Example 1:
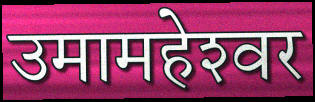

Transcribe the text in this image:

उमामहेश्वर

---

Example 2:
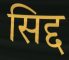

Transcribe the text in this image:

सिद्द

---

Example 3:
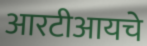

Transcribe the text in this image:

आरटीआयचे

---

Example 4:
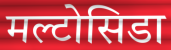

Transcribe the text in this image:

मल्टोसिडा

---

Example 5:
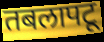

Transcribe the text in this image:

तबलापटू